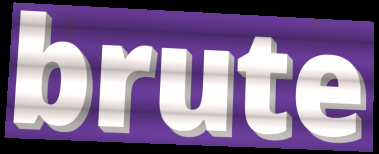
brute